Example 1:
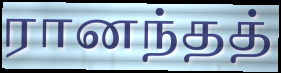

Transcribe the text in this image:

ரானந்தத்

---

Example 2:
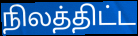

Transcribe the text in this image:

நிலத்திட்ட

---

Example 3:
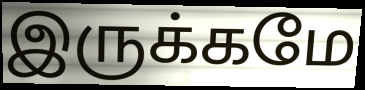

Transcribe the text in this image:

இருக்கமே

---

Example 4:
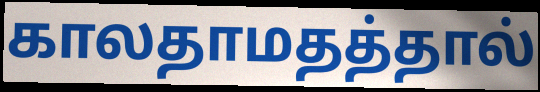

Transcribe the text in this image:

காலதாமதத்தால்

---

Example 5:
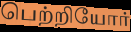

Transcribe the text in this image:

பெற்றியோர்